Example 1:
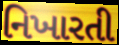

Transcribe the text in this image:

નિખારતી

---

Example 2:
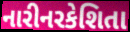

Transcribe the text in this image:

નારીનરકેશિતા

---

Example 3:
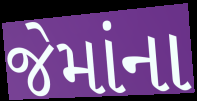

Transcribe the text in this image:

જેમાંના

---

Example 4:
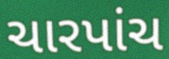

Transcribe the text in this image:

ચારપાંચ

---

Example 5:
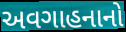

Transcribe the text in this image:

અવગાહનાનો